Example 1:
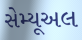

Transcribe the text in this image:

સેમ્યૂઅલ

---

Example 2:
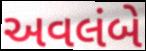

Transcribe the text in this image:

અવલંબે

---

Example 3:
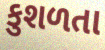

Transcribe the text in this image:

કુશળતા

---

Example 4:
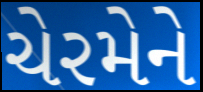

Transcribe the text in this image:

ચેરમેને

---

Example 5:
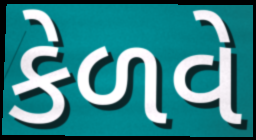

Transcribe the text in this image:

કેળવે